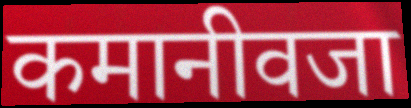
कमानीवजा